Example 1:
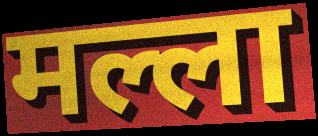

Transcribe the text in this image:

मल्ला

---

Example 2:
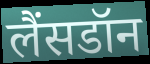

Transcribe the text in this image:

लैंसडॉन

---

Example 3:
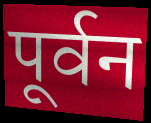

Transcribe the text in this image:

पूर्वन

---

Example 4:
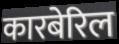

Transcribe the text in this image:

कारबेरिल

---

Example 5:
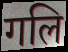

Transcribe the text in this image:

गलि